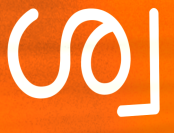
ശ്വ